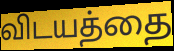
விடயத்தை